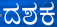
ದಶಕ